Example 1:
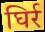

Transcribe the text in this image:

घिर्र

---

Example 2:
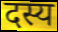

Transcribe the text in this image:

दस्य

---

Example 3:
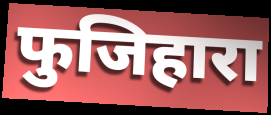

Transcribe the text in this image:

फुजिहारा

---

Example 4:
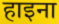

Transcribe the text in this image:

हाइना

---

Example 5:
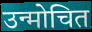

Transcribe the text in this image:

उन्मोचित